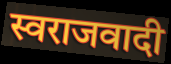
स्वराजवादी